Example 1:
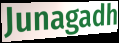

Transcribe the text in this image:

Junagadh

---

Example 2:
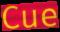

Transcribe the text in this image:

Cue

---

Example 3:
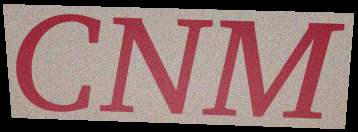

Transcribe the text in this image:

CNM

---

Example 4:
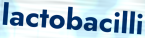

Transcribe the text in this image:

lactobacilli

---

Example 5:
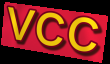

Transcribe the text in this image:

vcc